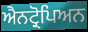
ਐਨਟ੍ਰੋਪਿਅਨ